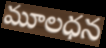
మూలధన